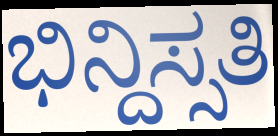
ಭಿನ್ದಿಸ್ಸತಿ